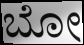
ಬೋ